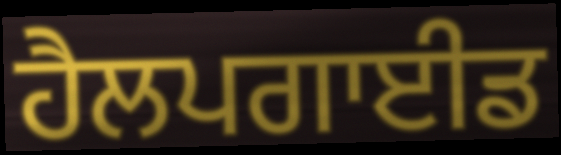
ਹੈਲਪਗਾਈਡ